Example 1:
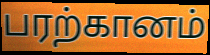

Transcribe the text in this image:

பரற்கானம்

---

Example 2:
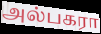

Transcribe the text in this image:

அல்பகரா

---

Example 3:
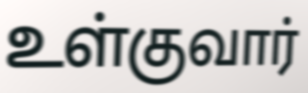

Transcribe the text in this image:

உள்குவார்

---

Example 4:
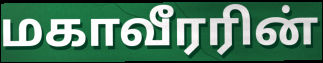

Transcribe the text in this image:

மகாவீரரின்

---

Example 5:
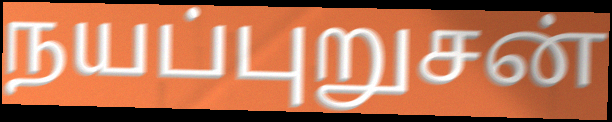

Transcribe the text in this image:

நயப்புறுசன்